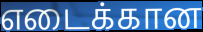
எடைக்கான